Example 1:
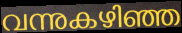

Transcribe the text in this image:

വന്നുകഴിഞ്ഞ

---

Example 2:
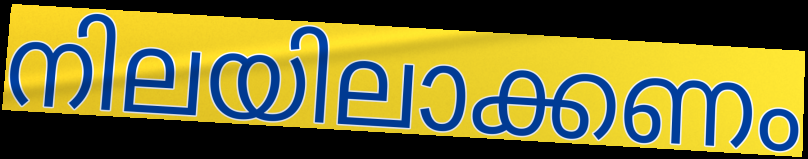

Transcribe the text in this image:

നിലയിലാക്കണം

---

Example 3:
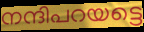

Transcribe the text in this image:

നന്ദിപറയട്ടെ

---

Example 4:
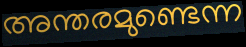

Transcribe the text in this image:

അന്തരമുണ്ടെന്ന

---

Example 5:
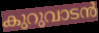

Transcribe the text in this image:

കുറുവാടൻ